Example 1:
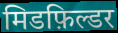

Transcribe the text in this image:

मिडफ़िल्डर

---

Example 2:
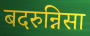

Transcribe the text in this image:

बदरुन्निसा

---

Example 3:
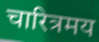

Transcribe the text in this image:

चारित्रमय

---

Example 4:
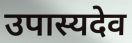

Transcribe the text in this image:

उपास्यदेव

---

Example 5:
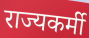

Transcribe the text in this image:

राज्यकर्मी